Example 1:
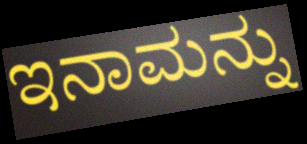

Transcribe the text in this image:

ಇನಾಮನ್ನು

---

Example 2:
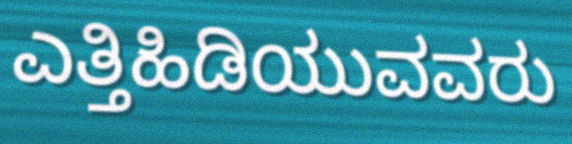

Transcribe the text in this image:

ಎತ್ತಿಹಿಡಿಯುವವರು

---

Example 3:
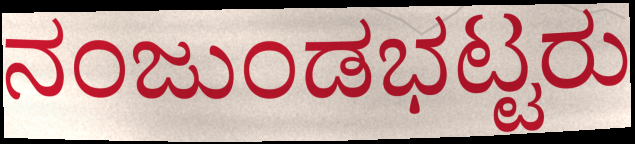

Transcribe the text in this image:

ನಂಜುಂಡಭಟ್ಟರು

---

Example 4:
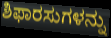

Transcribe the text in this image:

ಶಿಫಾರಸುಗಳನ್ನು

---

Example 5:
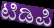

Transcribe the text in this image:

ಟಿಡಿಪಿ